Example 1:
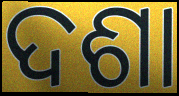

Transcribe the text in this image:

ଦଶା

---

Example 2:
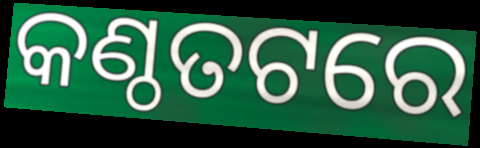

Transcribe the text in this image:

କଣ୍ଠତଟରେ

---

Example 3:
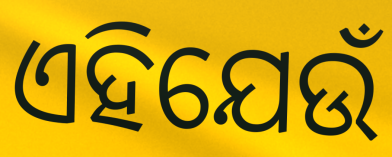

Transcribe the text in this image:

ଏହିଯେଉଁ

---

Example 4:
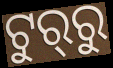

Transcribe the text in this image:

ଟୁର୍‍ରୁ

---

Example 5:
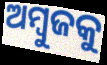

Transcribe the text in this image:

ଅମ୍ବୁଜକୁ